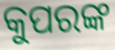
କୁପରଙ୍କ